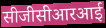
सीजीसीआरआई